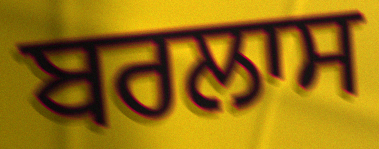
ਬਰਲਾਸ